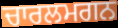
ਚਾਰਲਮਗਨ